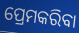
ପ୍ରେମକରିବା